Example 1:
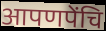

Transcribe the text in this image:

आपणपेंचि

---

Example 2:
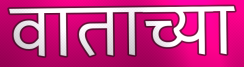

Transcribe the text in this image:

वाताच्या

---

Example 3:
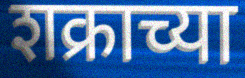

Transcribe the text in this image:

शक्राच्या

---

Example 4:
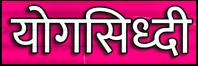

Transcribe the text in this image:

योगसिध्दी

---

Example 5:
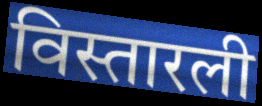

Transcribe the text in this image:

विस्तारली